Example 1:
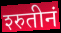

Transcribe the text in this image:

श्रुतीनं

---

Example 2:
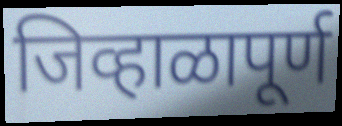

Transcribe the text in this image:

जिव्हाळापूर्ण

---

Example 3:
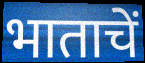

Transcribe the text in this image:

भाताचें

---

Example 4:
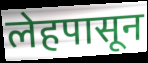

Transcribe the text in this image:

लेहपासून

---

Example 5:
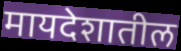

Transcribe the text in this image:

मायदेशातील